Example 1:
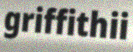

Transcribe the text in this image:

griffithii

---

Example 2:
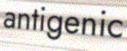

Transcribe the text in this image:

antigenic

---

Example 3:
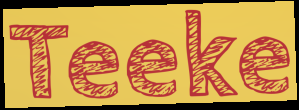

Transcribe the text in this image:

Teeke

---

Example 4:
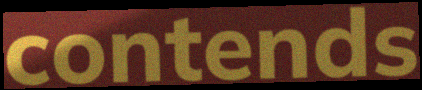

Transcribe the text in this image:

contends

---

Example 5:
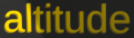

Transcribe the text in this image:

altitude